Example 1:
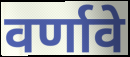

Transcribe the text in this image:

वर्णावे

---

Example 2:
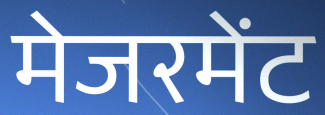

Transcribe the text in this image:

मेजरमेंट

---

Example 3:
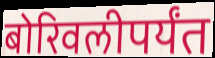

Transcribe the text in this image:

बोरिवलीपर्यंत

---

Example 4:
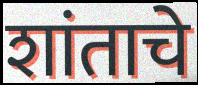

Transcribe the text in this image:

शांताचे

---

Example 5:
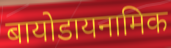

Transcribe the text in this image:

बायोडायनामिक